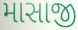
માસાજી